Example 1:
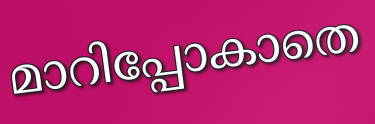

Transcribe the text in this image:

മാറിപ്പോകാതെ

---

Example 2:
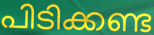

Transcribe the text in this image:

പിടിക്കണ്ട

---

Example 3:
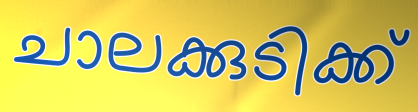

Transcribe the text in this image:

ചാലക്കുടിക്ക്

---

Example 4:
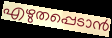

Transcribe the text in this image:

എഴുതപ്പെടാൻ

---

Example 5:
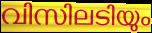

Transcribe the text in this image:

വിസിലടിയും